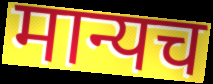
मान्यच